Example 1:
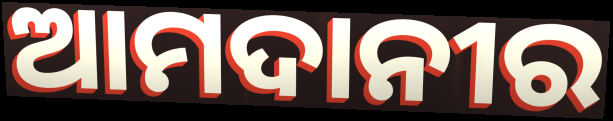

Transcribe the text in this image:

ଆମଦାନୀର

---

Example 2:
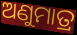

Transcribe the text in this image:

ଅଣୁମାତ୍ର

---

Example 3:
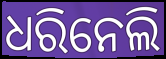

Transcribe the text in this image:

ଧରିନେଲି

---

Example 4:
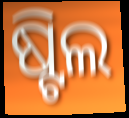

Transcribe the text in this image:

ଷ୍ଟିଲ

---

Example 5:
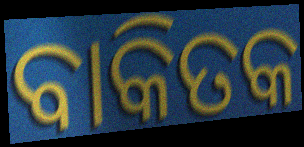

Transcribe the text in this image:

ବାକିତକ